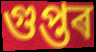
গুপ্তৰ